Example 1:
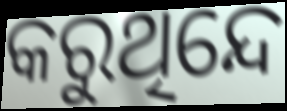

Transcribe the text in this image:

କରୁଥିନ୍ଦେ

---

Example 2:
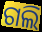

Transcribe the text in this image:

ଗଲି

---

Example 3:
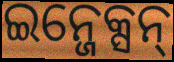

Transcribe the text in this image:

ଇନ୍ଜେକ୍ସନ୍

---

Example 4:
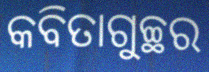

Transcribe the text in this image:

କବିତାଗୁଚ୍ଛର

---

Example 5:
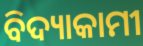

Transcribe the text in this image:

ବିଦ୍ୟାକାମୀ